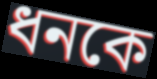
ধনকে